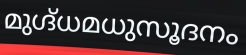
മുഗ്ദ്ധമധുസൂദനം